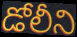
డోలీని